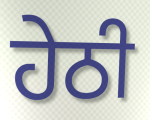
ਹੇਠੀ